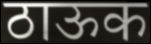
ठाऊक